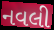
નવલી